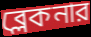
ব্লেকনার